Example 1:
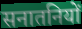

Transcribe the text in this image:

सनातनियों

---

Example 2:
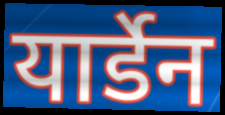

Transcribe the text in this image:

यार्डेन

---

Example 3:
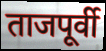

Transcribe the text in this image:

ताजपूर्वी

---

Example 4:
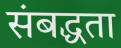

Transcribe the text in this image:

संबद्धता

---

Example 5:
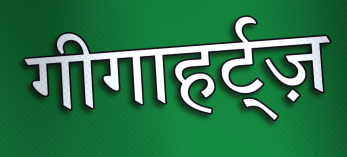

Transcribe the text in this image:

गीगाहर्ट्ज़